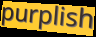
purplish